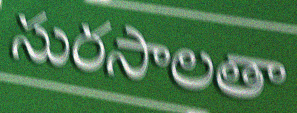
సురసాలతా